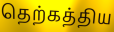
தெற்கத்திய